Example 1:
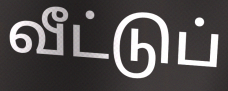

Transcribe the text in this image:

வீட்டுப்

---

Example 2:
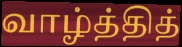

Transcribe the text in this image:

வாழ்த்தித்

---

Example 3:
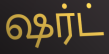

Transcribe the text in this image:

ஷர்ட்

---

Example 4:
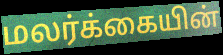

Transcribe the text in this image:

மலர்க்கையின்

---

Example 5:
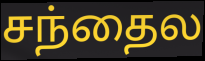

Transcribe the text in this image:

சந்தைல